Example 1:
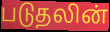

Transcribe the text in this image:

படுதலின்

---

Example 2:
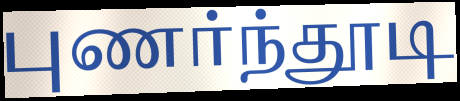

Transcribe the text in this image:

புணர்ந்தூடி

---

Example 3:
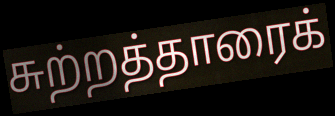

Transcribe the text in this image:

சுற்றத்தாரைக்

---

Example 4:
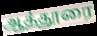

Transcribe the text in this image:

ஆத்தூரை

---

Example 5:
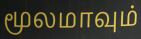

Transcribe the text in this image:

மூலமாவும்